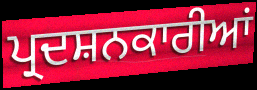
ਪ੍ਰਦਸ਼ਨਕਾਰੀਆਂ